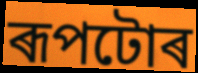
ৰূপটোৰ